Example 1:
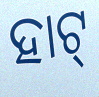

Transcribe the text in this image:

ହାଟ୍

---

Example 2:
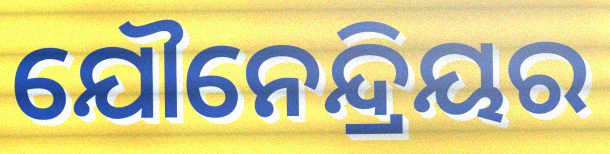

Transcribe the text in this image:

ଯୌନେନ୍ଦ୍ରିୟର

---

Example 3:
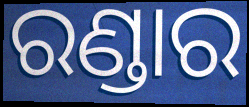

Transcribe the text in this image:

ରଣ୍ଡାର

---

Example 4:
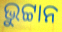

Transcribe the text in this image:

ଭୁଟ୍ଟାନ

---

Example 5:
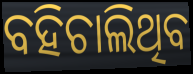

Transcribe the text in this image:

ବହିଚାଲିଥିବ